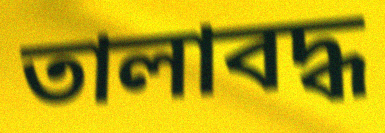
তালাবদ্ধ